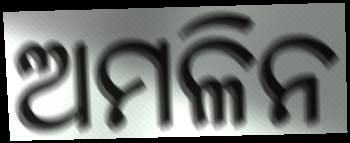
ଅମଳିନ